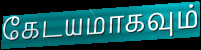
கேடயமாகவும்